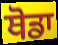
ਥੋਡਾ